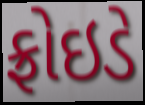
ફ્રોઇડે